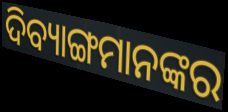
ଦିବ୍ୟାଙ୍ଗମାନଙ୍କର